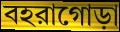
বহরাগোড়া